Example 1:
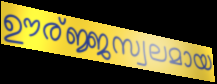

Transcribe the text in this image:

ഊര്ജ്ജസ്വലമായ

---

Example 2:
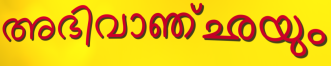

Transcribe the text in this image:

അഭിവാഞ്ഛയും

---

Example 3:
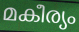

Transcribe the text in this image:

മകീര്യം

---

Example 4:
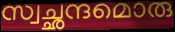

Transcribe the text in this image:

സ്വച്ഛന്ദമൊരു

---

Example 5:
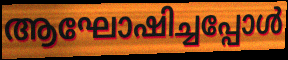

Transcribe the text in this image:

ആഘോഷിച്ചപ്പോൾ